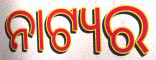
ନାଟ୍ୟର